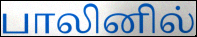
பாலினில்